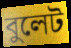
বুলেট